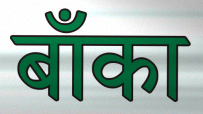
बाँका